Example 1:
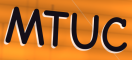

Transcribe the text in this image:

MTUC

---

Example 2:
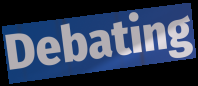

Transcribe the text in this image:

Debating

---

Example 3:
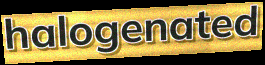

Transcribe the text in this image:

halogenated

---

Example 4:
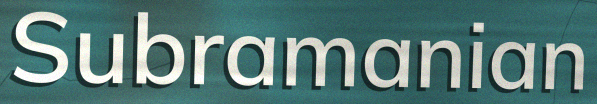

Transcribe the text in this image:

Subramanian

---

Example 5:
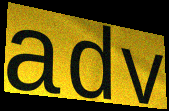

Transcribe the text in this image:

adv